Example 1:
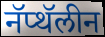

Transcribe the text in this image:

नॅप्थॅलीन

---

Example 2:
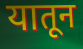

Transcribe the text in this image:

यातून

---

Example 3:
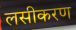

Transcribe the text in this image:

लसीकरण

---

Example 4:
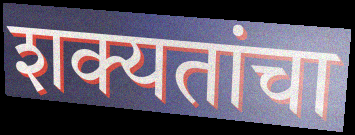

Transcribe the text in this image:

शक्यतांचा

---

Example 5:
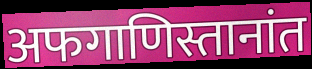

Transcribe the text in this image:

अफगाणिस्तानांत